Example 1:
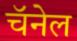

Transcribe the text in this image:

चॅनेल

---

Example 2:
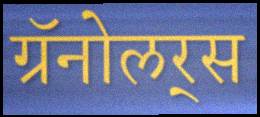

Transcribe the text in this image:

ग्रॅनोलर्स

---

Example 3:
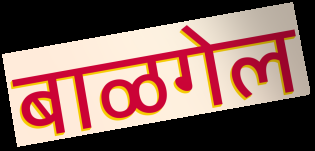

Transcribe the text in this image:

बाळगेल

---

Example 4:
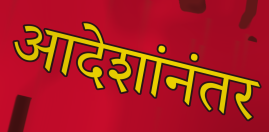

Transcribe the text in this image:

आदेशांनंतर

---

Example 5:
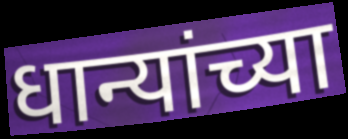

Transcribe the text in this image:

धान्यांच्या